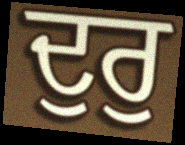
ਦੁਰੁ